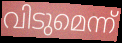
വിടുമെന്ന്